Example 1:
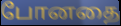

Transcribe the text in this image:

போனதை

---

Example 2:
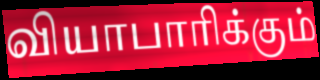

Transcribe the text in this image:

வியாபாரிக்கும்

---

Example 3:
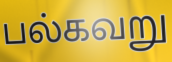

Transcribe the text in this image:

பல்கவறு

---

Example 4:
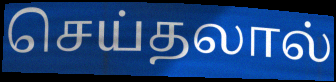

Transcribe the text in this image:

செய்தலால்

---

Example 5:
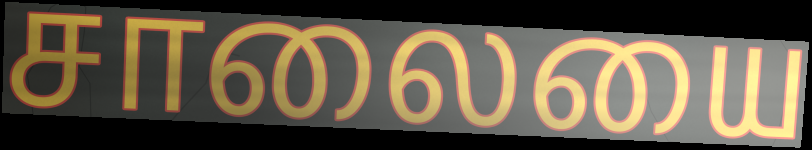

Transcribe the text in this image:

சாலையை